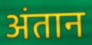
अंतान